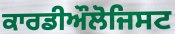
ਕਾਰਡੀਔਲੋਜਿਸਟ